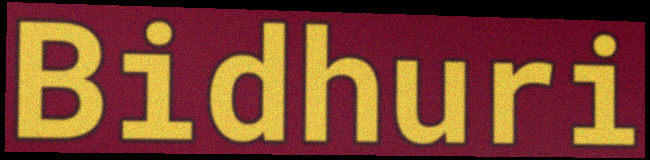
Bidhuri